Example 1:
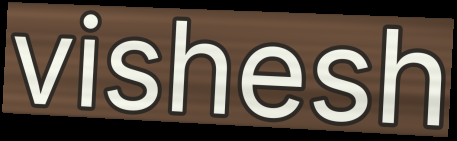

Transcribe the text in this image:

vishesh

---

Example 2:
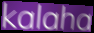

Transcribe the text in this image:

kalaha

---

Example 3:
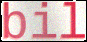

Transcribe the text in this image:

bil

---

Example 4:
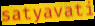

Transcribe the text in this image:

satyavati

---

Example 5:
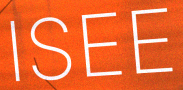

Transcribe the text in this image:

ISEE